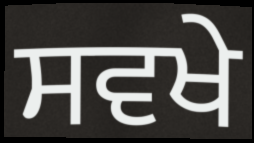
ਸਵਖੇ